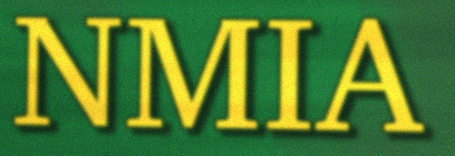
NMIA